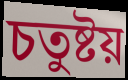
চতুষ্টয়